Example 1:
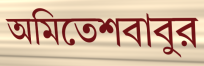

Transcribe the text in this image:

অমিতেশবাবুর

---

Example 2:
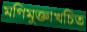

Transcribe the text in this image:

মণিমুক্তাখচিত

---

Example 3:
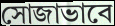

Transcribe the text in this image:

সোজাভাবে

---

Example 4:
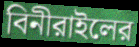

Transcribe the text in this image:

বিনীরাইলের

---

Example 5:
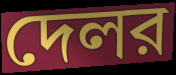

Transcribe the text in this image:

দেলর